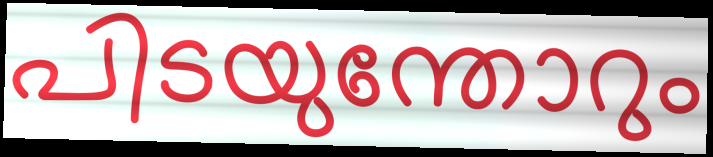
പിടയുന്തോറും